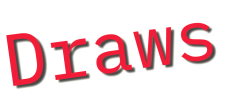
Draws